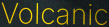
Volcanic